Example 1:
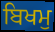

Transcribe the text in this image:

ਬਿਖਮੁ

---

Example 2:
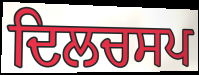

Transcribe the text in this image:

ਦਿਲਚਸਪ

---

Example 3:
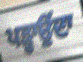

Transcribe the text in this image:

ਪੜ੍ਹਾਉਂਦਾ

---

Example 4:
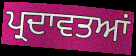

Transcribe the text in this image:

ਪ੍ਰਦਾਵਤਆਂ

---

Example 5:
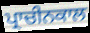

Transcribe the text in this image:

ਪ੍ਰਾਚੀਨਕਾਲ